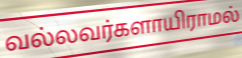
வல்லவர்களாயிராமல்